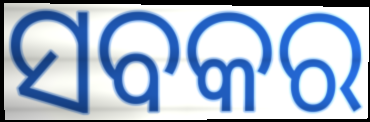
ସବକର